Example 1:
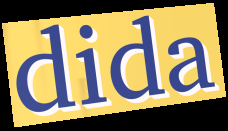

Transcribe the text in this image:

dida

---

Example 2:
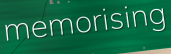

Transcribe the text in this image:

memorising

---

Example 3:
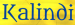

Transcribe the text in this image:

Kalindi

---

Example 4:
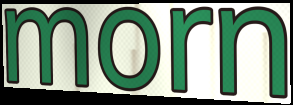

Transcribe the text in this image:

morn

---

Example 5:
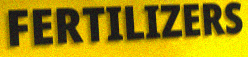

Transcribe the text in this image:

FERTILIZERS